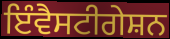
ਇੰਵੈਸਟੀਗੇਸ਼ਨ